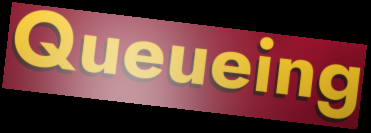
Queueing